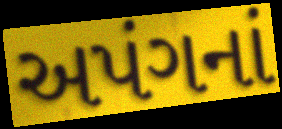
અપંગનાં